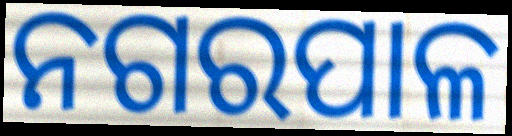
ନଗରପାଳ